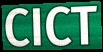
CICT